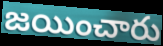
జయించారు